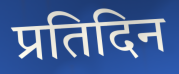
प्रतिदिन